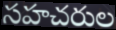
సహచరుల